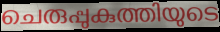
ചെരുപ്പുകുത്തിയുടെ